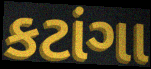
કટાંગા